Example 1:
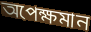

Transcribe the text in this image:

অপেক্ষমান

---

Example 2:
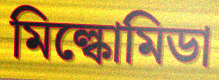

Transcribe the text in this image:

মিল্কোমিডা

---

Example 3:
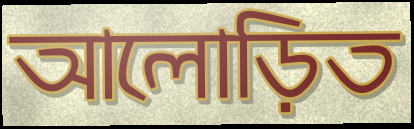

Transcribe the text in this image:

আলোড়িত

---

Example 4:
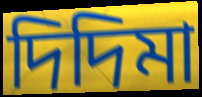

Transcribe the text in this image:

দিদিমা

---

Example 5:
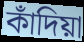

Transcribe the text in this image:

কাঁদিয়া